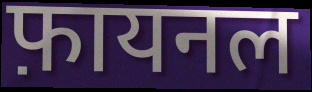
फ़ायनल